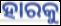
ହାରକୁ